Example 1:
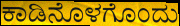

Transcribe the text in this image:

ಕಾಡಿನೊಳಗೊಂದು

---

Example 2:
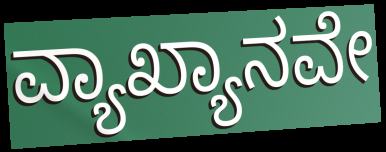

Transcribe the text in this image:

ವ್ಯಾಖ್ಯಾನವೇ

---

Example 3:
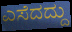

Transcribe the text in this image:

ಎಸೆದದ್ದು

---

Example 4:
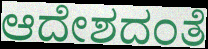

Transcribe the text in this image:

ಆದೇಶದಂತೆ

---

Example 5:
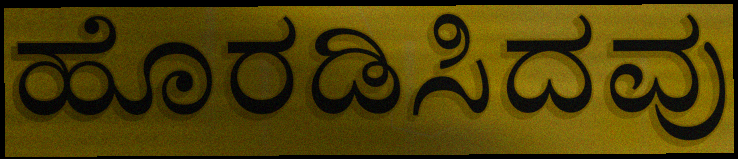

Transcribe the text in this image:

ಹೊರಡಿಸಿದವು